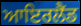
ਆਇਰਲੈਂਡ